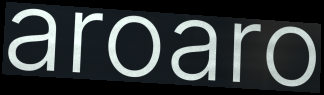
aroaro